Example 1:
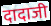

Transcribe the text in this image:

दादाजी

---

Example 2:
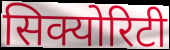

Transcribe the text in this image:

सिक्योरिटी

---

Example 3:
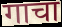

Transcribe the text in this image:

गाचा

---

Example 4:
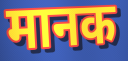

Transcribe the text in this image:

मानक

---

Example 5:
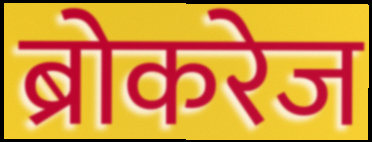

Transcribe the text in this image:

ब्रोकरेज